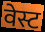
वेस्ट